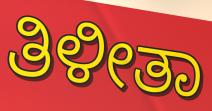
ತಿಳೀತಾ